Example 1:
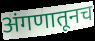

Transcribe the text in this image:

अंगणातूनच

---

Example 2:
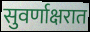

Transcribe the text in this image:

सुवर्णाक्षरात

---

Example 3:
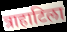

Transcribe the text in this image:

त्राहाटिला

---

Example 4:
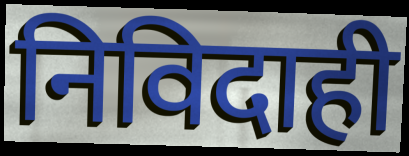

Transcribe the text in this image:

निविदाही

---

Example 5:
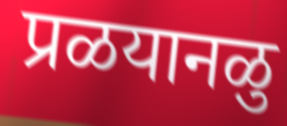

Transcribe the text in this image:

प्रळयानळु